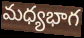
మధ్యభాగ